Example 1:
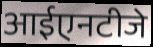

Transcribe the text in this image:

आईएनटीजे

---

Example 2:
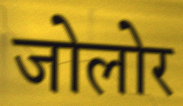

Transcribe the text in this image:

जोलोर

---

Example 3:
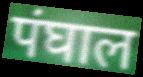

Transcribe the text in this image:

पंघाल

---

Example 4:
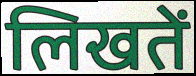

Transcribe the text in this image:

लिखतें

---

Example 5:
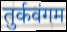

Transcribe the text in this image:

तुर्कवंगम